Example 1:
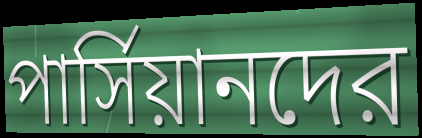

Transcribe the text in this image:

পার্সিয়ানদের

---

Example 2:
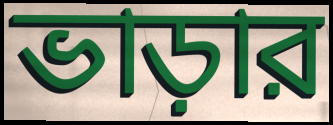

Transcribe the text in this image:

ভাড়ার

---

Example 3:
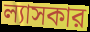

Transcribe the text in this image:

ল্যাসকার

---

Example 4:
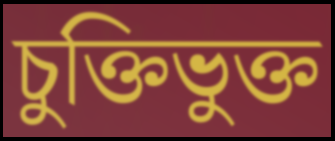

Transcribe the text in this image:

চুক্তিভুক্ত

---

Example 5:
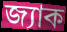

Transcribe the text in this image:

জ্যাক